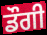
ਡੌਗੀ